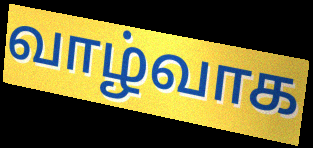
வாழ்வாக